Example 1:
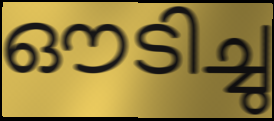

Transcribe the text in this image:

ഔടിച്ചു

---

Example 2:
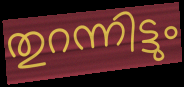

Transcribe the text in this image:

തുറന്നിട്ടും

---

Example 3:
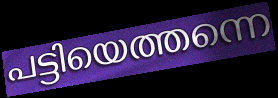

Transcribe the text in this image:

പട്ടിയെത്തന്നെ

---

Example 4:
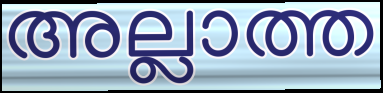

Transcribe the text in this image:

അല്ലാത്ത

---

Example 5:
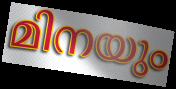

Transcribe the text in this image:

മിനയും